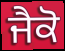
ਜੈਕੋ